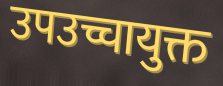
उपउच्चायुक्त